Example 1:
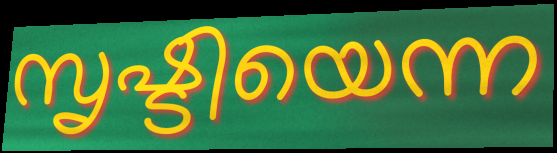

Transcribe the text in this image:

സൃഷ്ടിയെന്ന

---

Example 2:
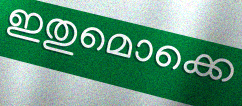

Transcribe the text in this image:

ഇതുമൊക്കെ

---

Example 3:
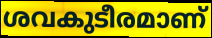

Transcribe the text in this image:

ശവകുടീരമാണ്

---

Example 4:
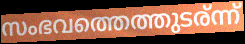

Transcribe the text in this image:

സംഭവത്തെത്തുടര്ന്ന്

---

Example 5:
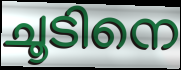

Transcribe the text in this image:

ചൂടിനെ